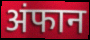
अंफान